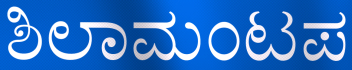
ಶಿಲಾಮಂಟಪ